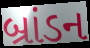
બ્રાંડન